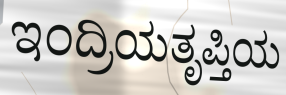
ಇಂದ್ರಿಯತೃಪ್ತಿಯ